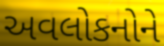
અવલોકનોને